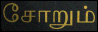
சோறும்